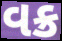
વક્ર